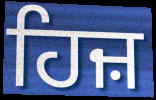
ਹਿਜ਼